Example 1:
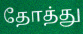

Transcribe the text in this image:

தோத்து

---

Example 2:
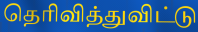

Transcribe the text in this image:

தெரிவித்துவிட்டு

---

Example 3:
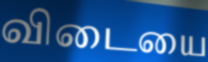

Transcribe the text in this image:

விடையை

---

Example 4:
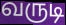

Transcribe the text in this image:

வருடி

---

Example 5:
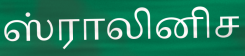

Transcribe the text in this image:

ஸ்ராலினிச